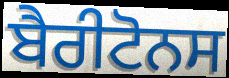
ਬੈਰੀਟੋਨਸ